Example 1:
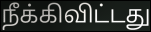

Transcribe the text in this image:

நீக்கிவிட்டது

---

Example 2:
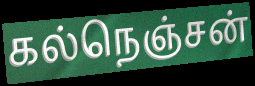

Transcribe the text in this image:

கல்நெஞ்சன்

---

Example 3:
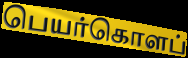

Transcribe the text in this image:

பெயர்கொளப்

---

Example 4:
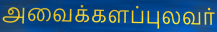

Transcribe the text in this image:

அவைக்களப்புலவர்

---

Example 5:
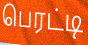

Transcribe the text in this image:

பெரட்டி